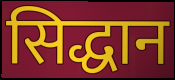
सिद्धान